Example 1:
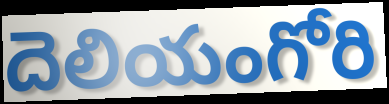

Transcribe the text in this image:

దెలియంగోరి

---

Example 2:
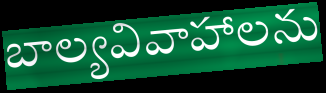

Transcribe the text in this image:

బాల్యవివాహాలను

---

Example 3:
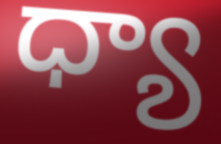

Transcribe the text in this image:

ధ్యా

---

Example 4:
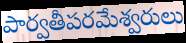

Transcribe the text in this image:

పార్వతీపరమేశ్వరులు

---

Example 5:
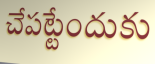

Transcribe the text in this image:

చేపట్టేందుకు